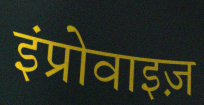
इंप्रोवाइज़